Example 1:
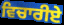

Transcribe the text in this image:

ਵਿਚਾਰੀਏ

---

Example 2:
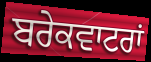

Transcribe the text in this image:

ਬਰੇਕਵਾਟਰਾਂ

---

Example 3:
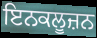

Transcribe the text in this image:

ਇਨਕਲੂਜ਼ਨ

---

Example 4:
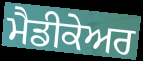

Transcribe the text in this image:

ਮੈਡੀਕੇਅਰ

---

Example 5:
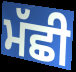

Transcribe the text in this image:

ਮੱਛੀ